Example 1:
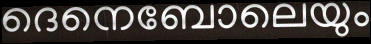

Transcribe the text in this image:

ദെനെബോലെയും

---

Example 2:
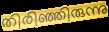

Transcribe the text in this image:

തിരിഞ്ഞിരുന്നു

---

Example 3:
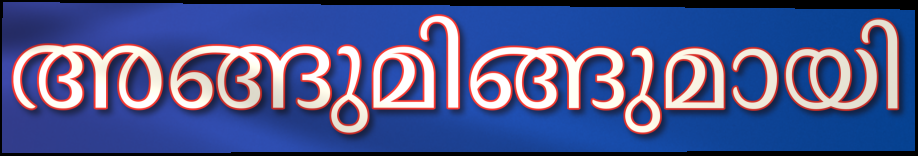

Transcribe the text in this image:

അങ്ങുമിങ്ങുമായി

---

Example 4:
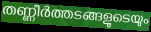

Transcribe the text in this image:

തണ്ണീർത്തടങ്ങളുടെയും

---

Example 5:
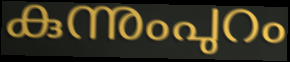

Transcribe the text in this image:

കുന്നുംപുറം